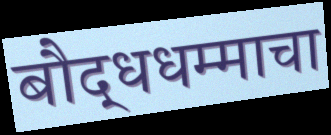
बौद्धधम्माचा